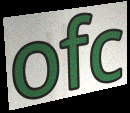
ofc